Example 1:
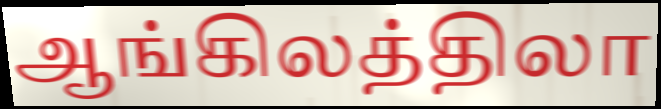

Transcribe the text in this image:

ஆங்கிலத்திலா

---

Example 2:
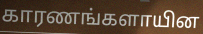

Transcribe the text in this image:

காரணங்களாயின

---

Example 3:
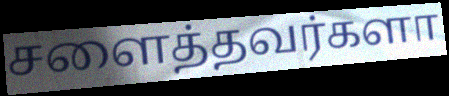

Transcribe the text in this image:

சளைத்தவர்களா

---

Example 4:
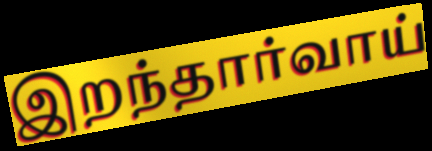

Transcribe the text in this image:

இறந்தார்வாய்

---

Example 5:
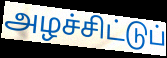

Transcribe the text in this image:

அழச்சிட்டுப்